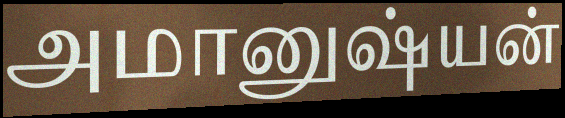
அமானுஷ்யன்